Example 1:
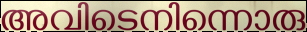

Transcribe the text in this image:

അവിടെനിന്നൊരു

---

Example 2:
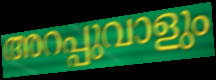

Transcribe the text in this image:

അറപ്പുവാളും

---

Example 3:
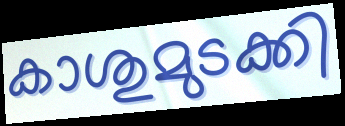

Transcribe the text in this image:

കാശുമുടക്കി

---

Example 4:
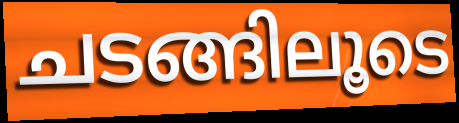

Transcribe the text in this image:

ചടങ്ങിലൂടെ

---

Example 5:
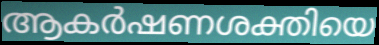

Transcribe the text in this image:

ആകർഷണശക്തിയെ